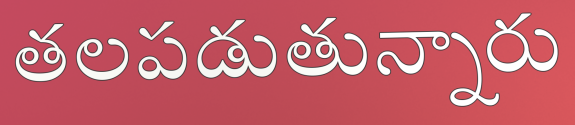
తలపడుతున్నారు